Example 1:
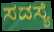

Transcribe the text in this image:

ಸದಸ್ಯೆ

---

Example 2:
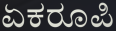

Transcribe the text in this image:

ಏಕರೂಪಿ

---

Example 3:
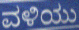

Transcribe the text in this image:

ವಳಿಯು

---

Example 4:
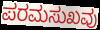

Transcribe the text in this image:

ಪರಮಸುಖವು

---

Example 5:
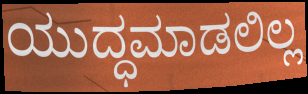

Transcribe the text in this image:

ಯುದ್ಧಮಾಡಲಿಲ್ಲ